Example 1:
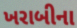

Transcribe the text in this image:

ખરાબીના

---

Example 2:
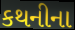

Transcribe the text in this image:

કથનીના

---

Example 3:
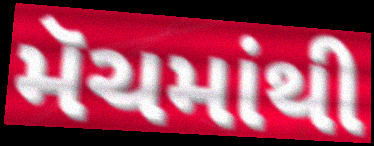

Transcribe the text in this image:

મૅચમાંથી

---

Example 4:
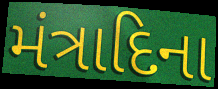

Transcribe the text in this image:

મંત્રાદિના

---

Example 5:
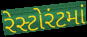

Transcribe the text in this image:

રેસ્ટોરંટમાં